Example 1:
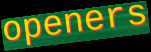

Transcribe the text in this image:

openers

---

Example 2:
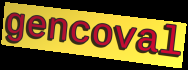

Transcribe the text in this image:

gencoval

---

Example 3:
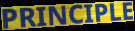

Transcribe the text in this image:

PRINCIPLE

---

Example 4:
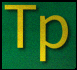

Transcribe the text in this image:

Tp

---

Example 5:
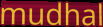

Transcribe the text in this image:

mudhal